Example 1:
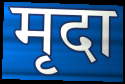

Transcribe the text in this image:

मृदा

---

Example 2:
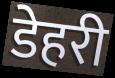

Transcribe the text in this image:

डेहरी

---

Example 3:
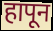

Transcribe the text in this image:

हापून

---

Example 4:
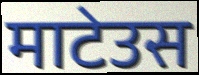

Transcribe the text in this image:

माटेउस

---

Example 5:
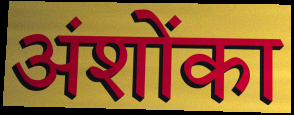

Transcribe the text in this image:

अंशोंका